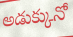
అడుక్కునో